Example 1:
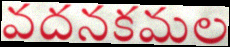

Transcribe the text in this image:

వదనకమల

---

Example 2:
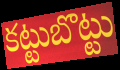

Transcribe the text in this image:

కట్టుబొట్టు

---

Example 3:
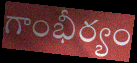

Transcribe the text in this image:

గాంభీర్యం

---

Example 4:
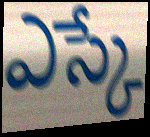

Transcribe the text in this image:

ఎస్కే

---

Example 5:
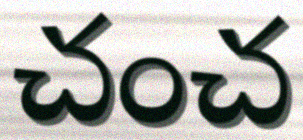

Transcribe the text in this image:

చంచ